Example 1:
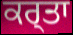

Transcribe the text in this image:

ਕਰ੍ਤਾ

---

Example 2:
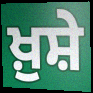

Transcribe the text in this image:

ਖ਼ੁਸ਼ੇ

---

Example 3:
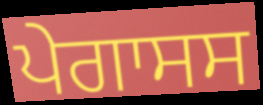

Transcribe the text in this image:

ਪੇਗਾਸਸ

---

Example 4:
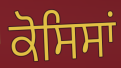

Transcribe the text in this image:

ਕੋਸਿਸਾਂ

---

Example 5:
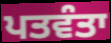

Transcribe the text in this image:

ਪਤਵੰਤਾ